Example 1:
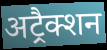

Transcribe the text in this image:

अट्रैक्शन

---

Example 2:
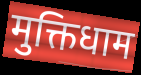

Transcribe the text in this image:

मुक्तिधाम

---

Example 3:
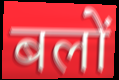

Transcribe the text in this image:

बलों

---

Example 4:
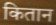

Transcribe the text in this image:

कितान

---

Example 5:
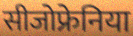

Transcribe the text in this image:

सीजोफ्रेनिया